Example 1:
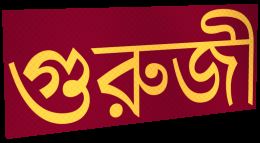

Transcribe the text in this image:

গুরুজী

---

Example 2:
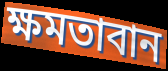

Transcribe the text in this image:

ক্ষমতাবান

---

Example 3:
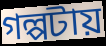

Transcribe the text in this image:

গল্পটায়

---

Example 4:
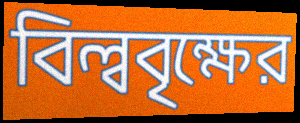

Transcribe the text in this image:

বিল্ববৃক্ষের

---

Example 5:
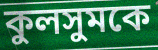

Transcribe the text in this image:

কুলসুমকে